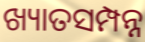
ଖ୍ୟାତସମ୍ପନ୍ନ